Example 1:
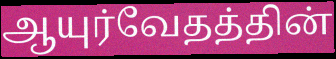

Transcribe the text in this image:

ஆயுர்வேதத்தின்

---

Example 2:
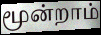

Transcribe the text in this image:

மூன்றாம்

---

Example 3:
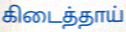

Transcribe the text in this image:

கிடைத்தாய்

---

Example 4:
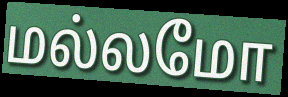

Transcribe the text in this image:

மல்லமோ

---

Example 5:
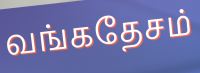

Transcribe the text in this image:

வங்கதேசம்